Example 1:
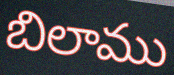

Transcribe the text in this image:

బిలాము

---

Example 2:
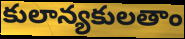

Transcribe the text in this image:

కులాన్యకులతాం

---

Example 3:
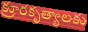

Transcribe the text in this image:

క్రూరకృత్యాలకు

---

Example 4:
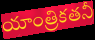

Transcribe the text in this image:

యాంత్రికతనీ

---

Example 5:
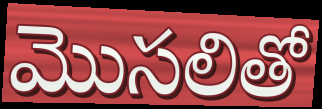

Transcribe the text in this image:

మొసలితో